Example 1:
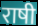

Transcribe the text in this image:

राषी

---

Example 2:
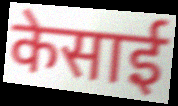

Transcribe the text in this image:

केसाई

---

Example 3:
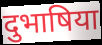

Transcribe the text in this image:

दुभाषिया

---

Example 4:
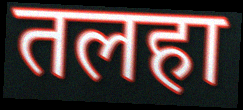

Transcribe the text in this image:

तलहा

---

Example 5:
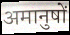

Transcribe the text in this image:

अमानुषों